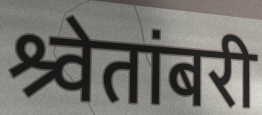
श्र्वेतांबरी